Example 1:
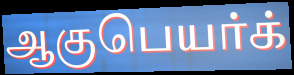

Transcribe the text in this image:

ஆகுபெயர்க்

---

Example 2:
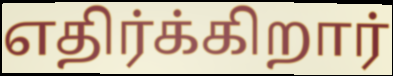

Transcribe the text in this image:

எதிர்க்கிறார்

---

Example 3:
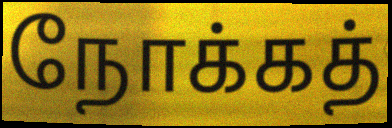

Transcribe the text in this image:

நோக்கத்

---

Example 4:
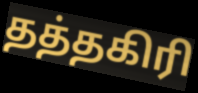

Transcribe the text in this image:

தத்தகிரி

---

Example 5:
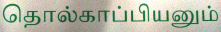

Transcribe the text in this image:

தொல்காப்பியனும்